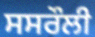
ਸਸਰੌਲੀ